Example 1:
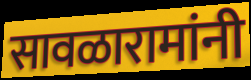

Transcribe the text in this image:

सावळारामांनी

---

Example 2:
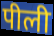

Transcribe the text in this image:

पीली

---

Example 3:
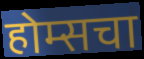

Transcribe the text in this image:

होम्सचा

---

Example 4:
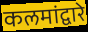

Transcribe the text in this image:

कलमांद्वारे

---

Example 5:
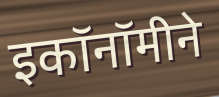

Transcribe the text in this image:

इकॉनॉमीने